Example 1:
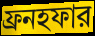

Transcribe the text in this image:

ফ্রনহফার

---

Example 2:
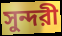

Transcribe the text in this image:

সুন্দরী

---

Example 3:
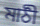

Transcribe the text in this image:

মাঠী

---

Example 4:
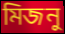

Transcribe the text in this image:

মিজনু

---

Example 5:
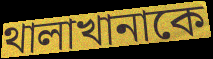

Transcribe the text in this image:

থালাখানাকে